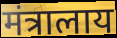
मंत्रालाय